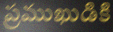
ప్రముఖుడికి